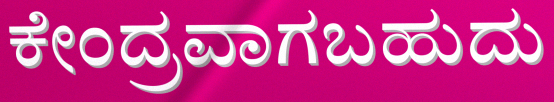
ಕೇಂದ್ರವಾಗಬಹುದು